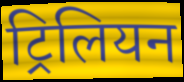
ट्रिलियन